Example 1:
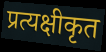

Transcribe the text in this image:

प्रत्यक्षीकृत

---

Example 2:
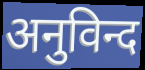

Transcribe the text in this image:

अनुविन्द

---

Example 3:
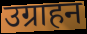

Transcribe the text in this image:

उग्राहन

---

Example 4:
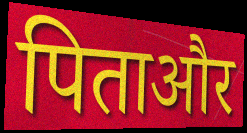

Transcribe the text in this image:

पिताऔर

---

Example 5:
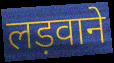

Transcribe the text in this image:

लड़वाने